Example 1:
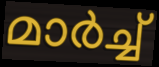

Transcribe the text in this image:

മാർച്ച്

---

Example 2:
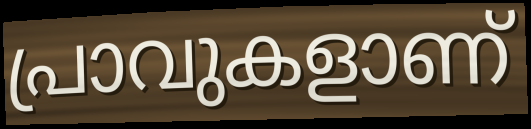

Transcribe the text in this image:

പ്രാവുകളാണ്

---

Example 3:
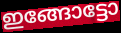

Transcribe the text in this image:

ഇങ്ങോട്ടോ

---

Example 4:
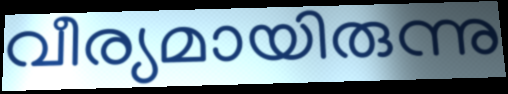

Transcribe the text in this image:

വീര്യമായിരുന്നു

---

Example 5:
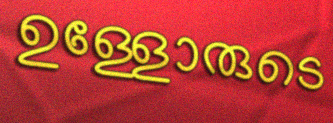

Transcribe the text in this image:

ഉള്ളോരുടെ